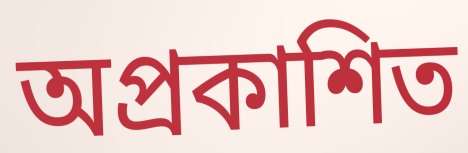
অপ্ৰকাশিত